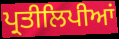
ਪ੍ਰਤੀਲਿਪੀਆਂ